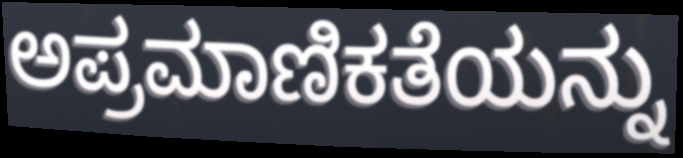
ಅಪ್ರಮಾಣಿಕತೆಯನ್ನು